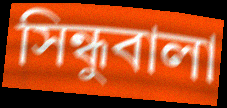
সিন্ধুবালা